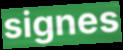
signes